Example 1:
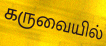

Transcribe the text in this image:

கருவையில்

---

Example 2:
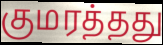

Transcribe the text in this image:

குமரத்தது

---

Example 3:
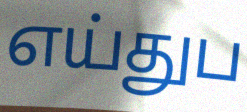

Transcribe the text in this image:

எய்துப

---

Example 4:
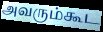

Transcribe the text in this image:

அவரும்கூட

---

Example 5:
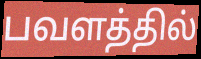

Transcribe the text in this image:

பவளத்தில்